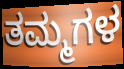
ತಮ್ಮಗಳ